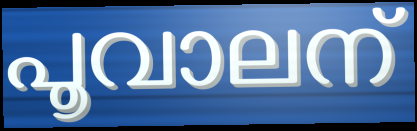
പൂവാലന്